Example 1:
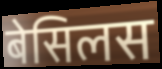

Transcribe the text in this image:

बेसिलस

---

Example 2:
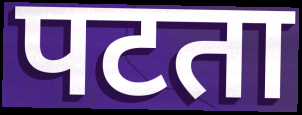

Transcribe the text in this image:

पटता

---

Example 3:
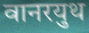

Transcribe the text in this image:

वानरयुथ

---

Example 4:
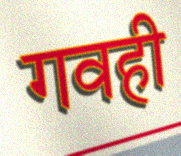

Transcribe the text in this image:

गवही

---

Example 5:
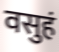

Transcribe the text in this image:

वसुहं